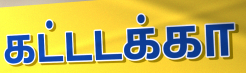
கட்டடக்கா